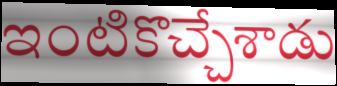
ఇంటికొచ్చేశాడు